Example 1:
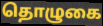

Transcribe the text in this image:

தொழுகை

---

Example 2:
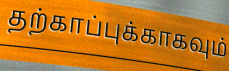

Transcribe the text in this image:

தற்காப்புக்காகவும்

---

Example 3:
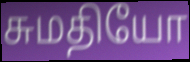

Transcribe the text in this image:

சுமதியோ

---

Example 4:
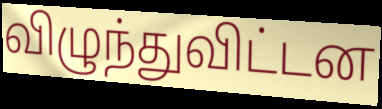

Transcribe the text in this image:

விழுந்துவிட்டன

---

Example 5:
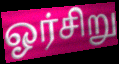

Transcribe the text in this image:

ஓர்சிறு